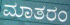
ಮಾತರಂ